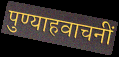
पुण्याहवाचनीं